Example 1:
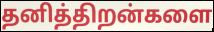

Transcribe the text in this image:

தனித்திறன்களை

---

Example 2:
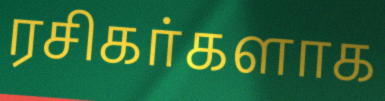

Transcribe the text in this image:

ரசிகர்களாக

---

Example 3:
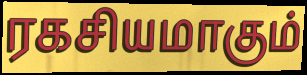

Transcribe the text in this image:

ரகசியமாகும்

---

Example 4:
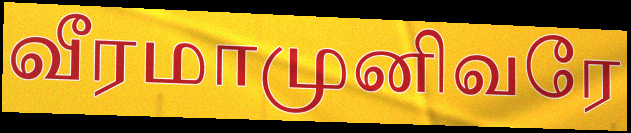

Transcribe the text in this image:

வீரமாமுனிவரே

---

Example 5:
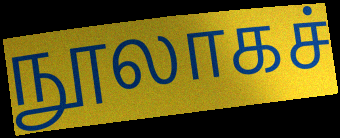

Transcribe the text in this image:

நூலாகச்